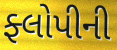
ફ્લોપીની